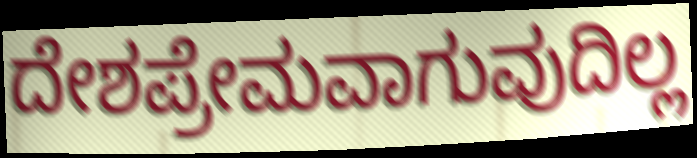
ದೇಶಪ್ರೇಮವಾಗುವುದಿಲ್ಲ